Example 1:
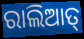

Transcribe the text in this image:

ରାଲିଆତ୍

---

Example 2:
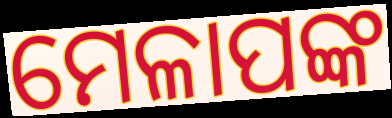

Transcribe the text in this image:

ମେଳାପଙ୍କ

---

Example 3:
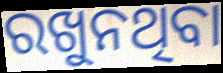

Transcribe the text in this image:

ରଖୁନଥିବା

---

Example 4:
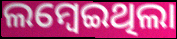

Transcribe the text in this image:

ଲମ୍ବେଇଥିଲା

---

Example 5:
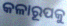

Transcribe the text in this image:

କଳାରୂପକୁ